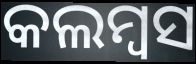
କଲମ୍ବସ